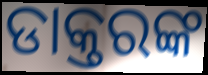
ଡାକ୍ତରଙ୍କ